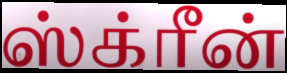
ஸ்க்ரீன்